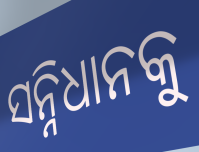
ସନ୍ନିଧାନକୁ